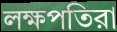
লক্ষপতিরা